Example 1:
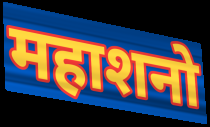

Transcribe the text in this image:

महाशनो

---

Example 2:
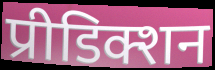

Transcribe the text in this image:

प्रीडिक्शन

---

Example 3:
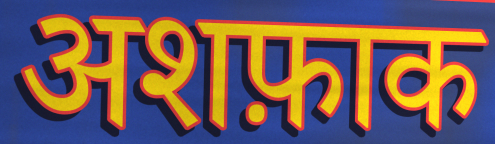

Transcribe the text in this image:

अशफ़ाक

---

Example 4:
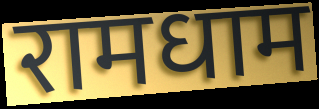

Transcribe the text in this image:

रामधाम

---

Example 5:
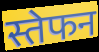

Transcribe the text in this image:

स्तेफन